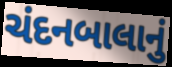
ચંદનબાલાનું